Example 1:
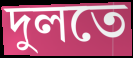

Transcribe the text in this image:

দুলতে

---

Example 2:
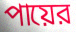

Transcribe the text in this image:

পায়ের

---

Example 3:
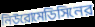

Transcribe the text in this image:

নিউরোমেডিসিনের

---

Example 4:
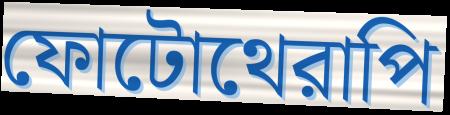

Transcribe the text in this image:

ফোটোথেরাপি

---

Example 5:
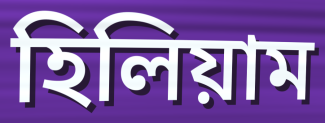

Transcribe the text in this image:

হিলিয়াম